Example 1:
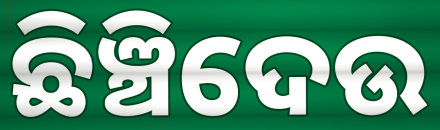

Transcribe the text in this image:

ଛିଞ୍ଚିଦେଉ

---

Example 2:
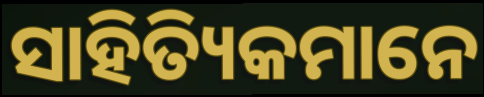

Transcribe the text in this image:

ସାହିତ୍ୟିକମାନେ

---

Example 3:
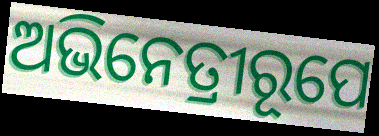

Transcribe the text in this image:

ଅଭିନେତ୍ରୀରୂପେ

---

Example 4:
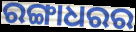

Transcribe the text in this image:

ରଙ୍ଗାଧରର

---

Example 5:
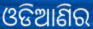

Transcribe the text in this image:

ଓଡିଆଣିର